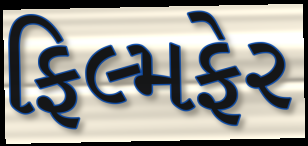
ફિલ્મફેર